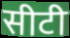
सीटी